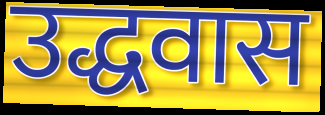
उद्धवास